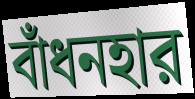
বাঁধনহার